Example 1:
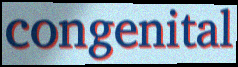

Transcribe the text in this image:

congenital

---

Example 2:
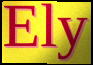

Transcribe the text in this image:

Ely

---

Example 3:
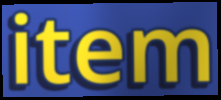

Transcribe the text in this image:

item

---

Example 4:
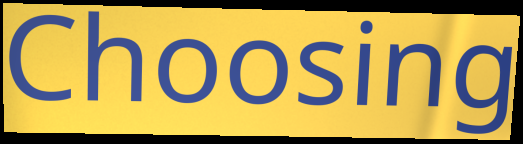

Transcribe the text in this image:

Choosing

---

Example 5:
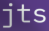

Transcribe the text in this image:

jts